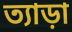
ত্যাড়া